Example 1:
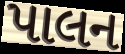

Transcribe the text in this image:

પાલન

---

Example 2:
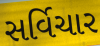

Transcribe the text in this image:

સર્વિચાર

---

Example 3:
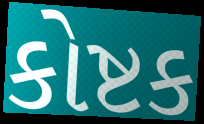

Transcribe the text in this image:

કોષ્ટક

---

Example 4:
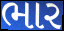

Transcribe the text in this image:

ભાર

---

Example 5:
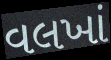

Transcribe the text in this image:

વલખાં